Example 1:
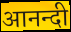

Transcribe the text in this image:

आनन्दी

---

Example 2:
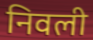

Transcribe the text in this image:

निवली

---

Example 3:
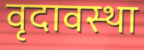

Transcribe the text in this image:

वृदावस्था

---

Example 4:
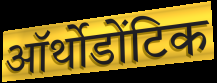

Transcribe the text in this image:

ऑर्थोडोंटिक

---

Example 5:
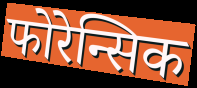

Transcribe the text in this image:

फोरेन्सिक